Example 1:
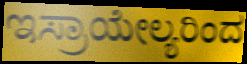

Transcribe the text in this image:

ಇಸ್ರಾಯೇಲ್ಯರಿಂದ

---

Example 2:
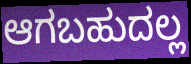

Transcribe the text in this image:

ಆಗಬಹುದಲ್ಲ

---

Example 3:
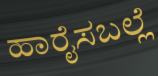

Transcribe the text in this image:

ಹಾರೈಸಬಲ್ಲೆ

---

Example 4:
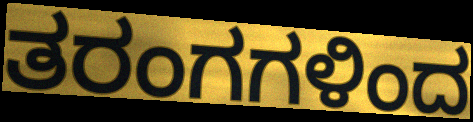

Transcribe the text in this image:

ತರಂಗಗಳಿಂದ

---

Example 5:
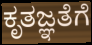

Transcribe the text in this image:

ಕೃತಜ್ಞತೆಗೆ